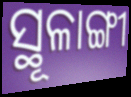
ସ୍ଥୂଳାଙ୍ଗୀ